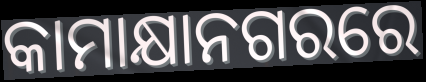
କାମାକ୍ଷାନଗରରେ